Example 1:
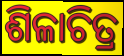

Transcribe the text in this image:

ଶିଳାଚିତ୍ର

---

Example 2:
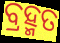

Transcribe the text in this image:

ବ୍ରହ୍ମତ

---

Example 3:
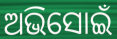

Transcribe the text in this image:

ଅଭିସୋଇଁ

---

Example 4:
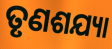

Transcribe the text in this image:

ତୃଣଶଯ୍ୟା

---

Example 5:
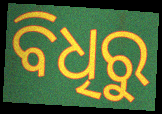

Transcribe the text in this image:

ବିଧିରୁ